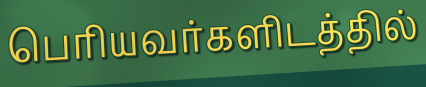
பெரியவர்களிடத்தில்